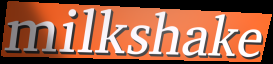
milkshake